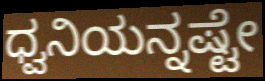
ಧ್ವನಿಯನ್ನಷ್ಟೇ